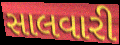
સાલવારી